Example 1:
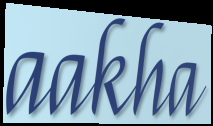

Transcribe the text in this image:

aakha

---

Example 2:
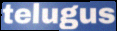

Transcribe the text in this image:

telugus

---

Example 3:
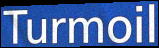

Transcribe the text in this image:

Turmoil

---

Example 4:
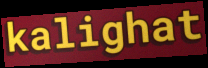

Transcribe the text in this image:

kalighat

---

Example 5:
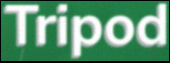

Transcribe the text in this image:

Tripod